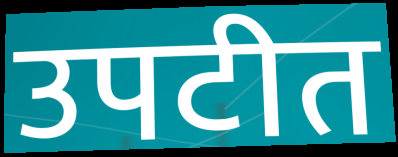
उपटीत